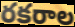
రకరాల